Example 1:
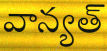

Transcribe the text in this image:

వాన్యత్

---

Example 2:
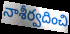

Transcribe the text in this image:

నాశీర్వదించి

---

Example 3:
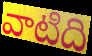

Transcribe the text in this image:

వాటిది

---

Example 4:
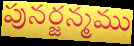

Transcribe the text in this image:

పునర్జన్మము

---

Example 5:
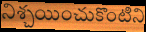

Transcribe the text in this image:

నిశ్చయించుకొంటిని